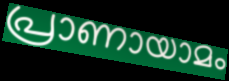
പ്രാണായാമം